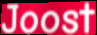
Joost